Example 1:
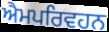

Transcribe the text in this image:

ਐਮਪਰਿਵਹਨ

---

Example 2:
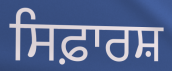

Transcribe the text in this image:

ਸਿਫ਼ਾਰਸ਼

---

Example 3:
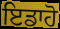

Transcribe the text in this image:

ਇਡਾਹੋ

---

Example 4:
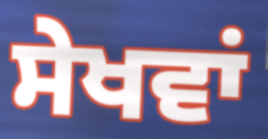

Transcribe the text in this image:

ਸੇਖਵਾਂ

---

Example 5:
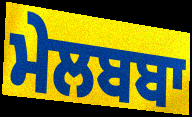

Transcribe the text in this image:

ਮੇਲਬਬਾ